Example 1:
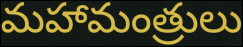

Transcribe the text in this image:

మహామంత్రులు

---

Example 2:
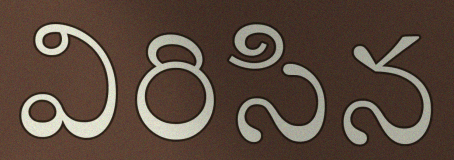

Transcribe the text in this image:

విరిసిన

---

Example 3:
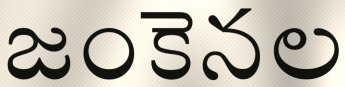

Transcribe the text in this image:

జంకెనల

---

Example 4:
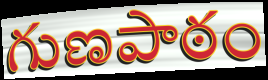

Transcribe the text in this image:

గుణపాఠం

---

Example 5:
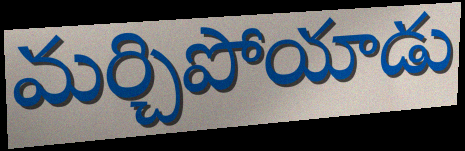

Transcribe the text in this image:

మర్చిపోయాడు